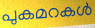
പുകമറകൾ